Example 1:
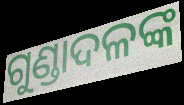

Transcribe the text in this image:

ଗୁଣ୍ଡାଦଳଙ୍କ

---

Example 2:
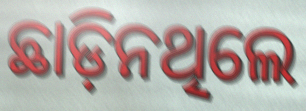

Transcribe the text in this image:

ଛାଡ଼ିନଥିଲେ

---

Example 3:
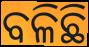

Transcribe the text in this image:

ବଳିଛି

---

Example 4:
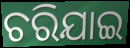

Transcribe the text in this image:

ଚରିଯାଇ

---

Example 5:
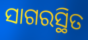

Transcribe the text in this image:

ସାଗରସ୍ଥିତ